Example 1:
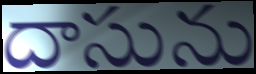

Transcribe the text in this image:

దాసును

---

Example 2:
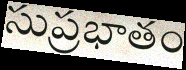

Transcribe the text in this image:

సుప్రభాతం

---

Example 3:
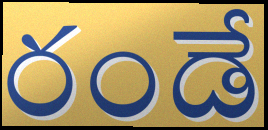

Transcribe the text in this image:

రండే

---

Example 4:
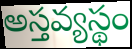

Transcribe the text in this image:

అస్తవ్యస్థం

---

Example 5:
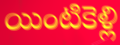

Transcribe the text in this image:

యింటికెళ్లి